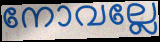
നോവല്ലേ